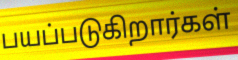
பயப்படுகிறார்கள்